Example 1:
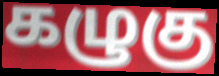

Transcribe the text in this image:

கழுகு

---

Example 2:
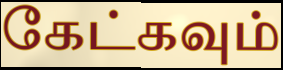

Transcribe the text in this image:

கேட்கவும்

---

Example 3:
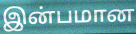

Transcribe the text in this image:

இன்பமான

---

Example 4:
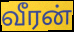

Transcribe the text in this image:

வீரன்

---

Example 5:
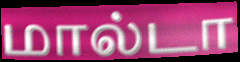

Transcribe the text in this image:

மால்டா